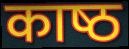
काष्‍ठ